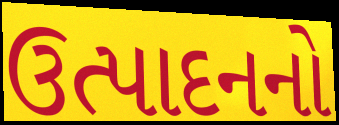
ઉત્પાદનનો